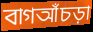
বাগআঁচড়া